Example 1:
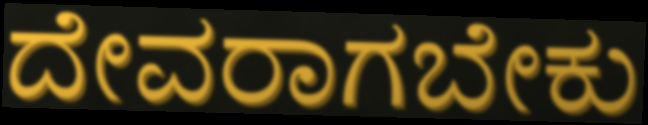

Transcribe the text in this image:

ದೇವರಾಗಬೇಕು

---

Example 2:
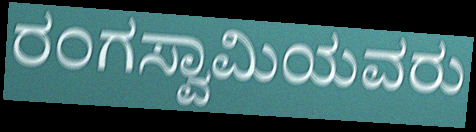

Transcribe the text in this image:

ರಂಗಸ್ವಾಮಿಯವರು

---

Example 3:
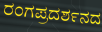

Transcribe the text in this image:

ರಂಗಪ್ರದರ್ಶನದ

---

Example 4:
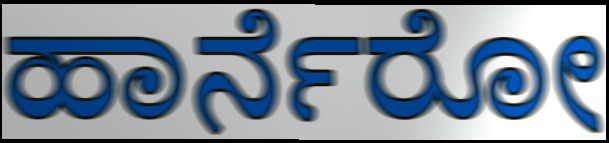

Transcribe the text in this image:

ಹಾರ್ನೆರೋ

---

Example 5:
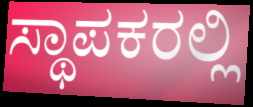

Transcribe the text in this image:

ಸ್ಥಾಪಕರಲ್ಲಿ